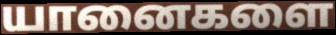
யானைகளை